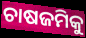
ଚାଷଜମିକୁ